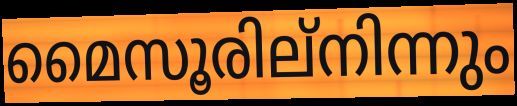
മൈസൂരില്നിന്നും